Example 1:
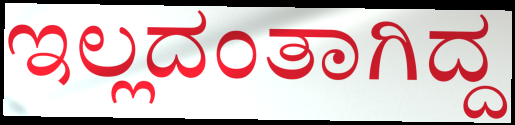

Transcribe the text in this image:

ಇಲ್ಲದಂತಾಗಿದ್ದ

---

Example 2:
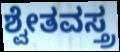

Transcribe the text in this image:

ಶ್ವೇತವಸ್ತ್ರ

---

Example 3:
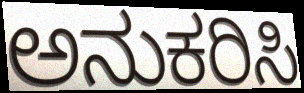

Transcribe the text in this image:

ಅನುಕರಿಸಿ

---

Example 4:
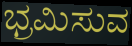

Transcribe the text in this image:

ಭ್ರಮಿಸುವ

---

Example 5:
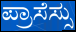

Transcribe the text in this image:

ಪ್ರಾಸೆಸ್ಸು